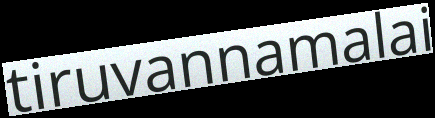
tiruvannamalai